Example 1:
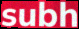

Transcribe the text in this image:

subh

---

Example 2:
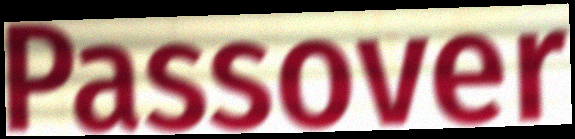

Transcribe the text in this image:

Passover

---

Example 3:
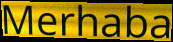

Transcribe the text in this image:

Merhaba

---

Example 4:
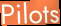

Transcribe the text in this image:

Pilots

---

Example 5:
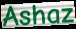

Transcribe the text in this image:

Ashaz